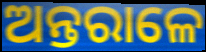
ଅନ୍ତରାଳେ